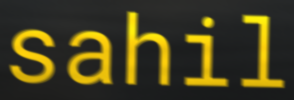
sahil